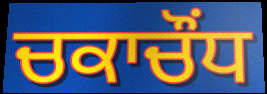
ਚਕਾਚੌਂਧ